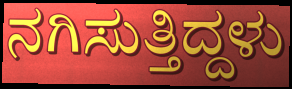
ನಗಿಸುತ್ತಿದ್ದಳು